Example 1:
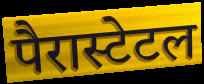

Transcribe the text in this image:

पैरास्टेटल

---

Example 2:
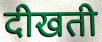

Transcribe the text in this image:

दीखती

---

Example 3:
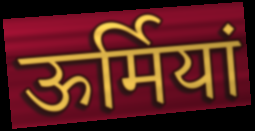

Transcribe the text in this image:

ऊर्मियां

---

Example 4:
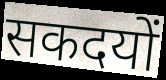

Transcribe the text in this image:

सकदयों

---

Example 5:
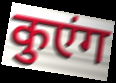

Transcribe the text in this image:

कुएंग